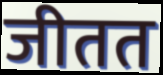
जीतत